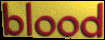
blood